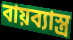
বায়ব্যাস্ত্র